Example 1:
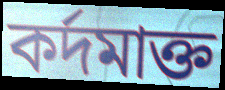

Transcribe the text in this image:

কর্দমাক্ত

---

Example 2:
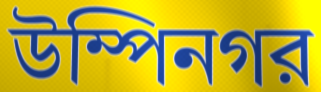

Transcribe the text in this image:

উম্পিনগর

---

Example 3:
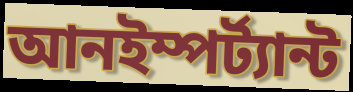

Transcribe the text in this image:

আনইম্পর্ট্যান্ট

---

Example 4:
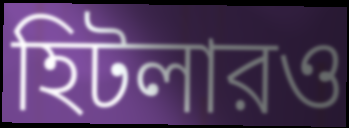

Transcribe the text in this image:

হিটলারও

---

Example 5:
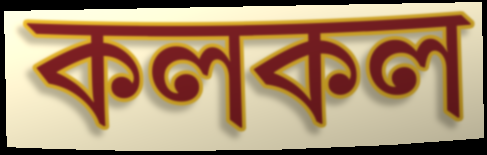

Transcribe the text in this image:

কলকল